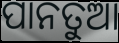
ପାନତୁଆ